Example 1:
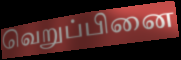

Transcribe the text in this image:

வெறுப்பினை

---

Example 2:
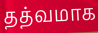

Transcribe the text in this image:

தத்வமாக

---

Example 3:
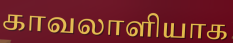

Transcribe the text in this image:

காவலாளியாக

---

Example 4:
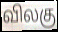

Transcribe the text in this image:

விலகு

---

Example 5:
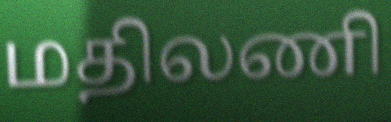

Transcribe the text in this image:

மதிலணி